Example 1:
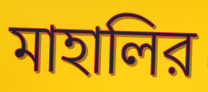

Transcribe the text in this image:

মাহালির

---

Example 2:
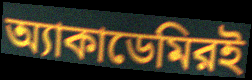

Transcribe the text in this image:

অ্যাকাডেমিরই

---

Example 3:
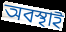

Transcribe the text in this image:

অবস্থাই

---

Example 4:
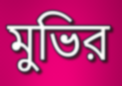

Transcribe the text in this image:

মুভির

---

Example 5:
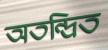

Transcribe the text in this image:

অতন্দ্রিত